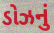
ડોઝનું